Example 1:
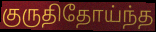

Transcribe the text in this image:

குருதிதோய்ந்த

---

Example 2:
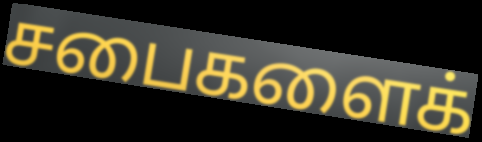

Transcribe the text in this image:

சபைகளைக்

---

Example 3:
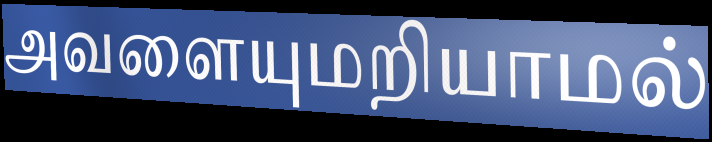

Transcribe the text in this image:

அவளையுமறியாமல்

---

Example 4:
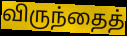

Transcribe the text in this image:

விருந்தைத்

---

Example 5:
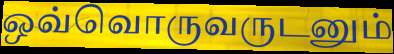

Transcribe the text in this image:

ஒவ்வொருவருடனும்